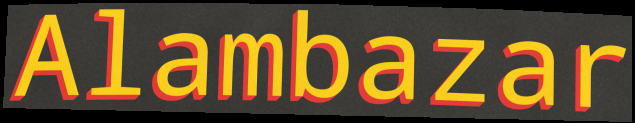
Alambazar